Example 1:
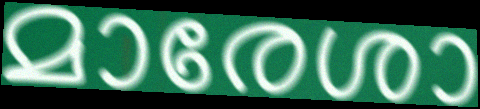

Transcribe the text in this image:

മാരേശാ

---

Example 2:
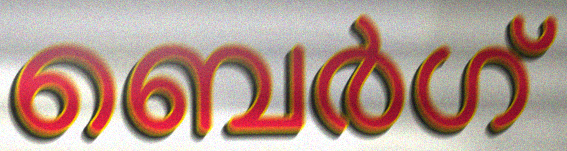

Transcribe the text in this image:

ബെർഗ്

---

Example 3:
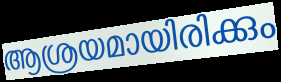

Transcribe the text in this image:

ആശ്രയമായിരിക്കും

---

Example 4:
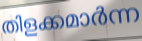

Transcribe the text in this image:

തിളക്കമാർന്ന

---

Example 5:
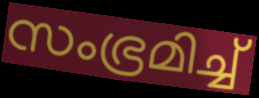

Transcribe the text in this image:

സംഭ്രമിച്ച്